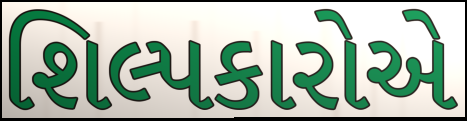
શિલ્પકારોએ